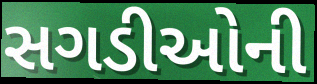
સગડીઓની